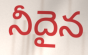
నీదైన